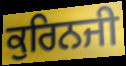
ਕੁਰਿਨਜੀ